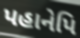
પહાનેપિ